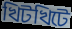
খিটখিটে